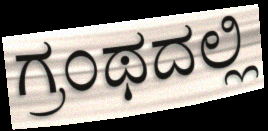
ಗ್ರಂಥದಲ್ಲಿ